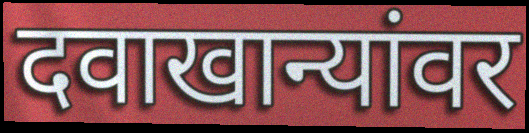
दवाखान्यांवर